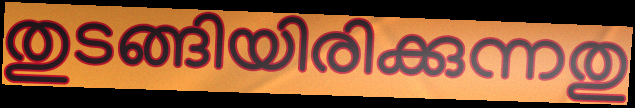
തുടങ്ങിയിരിക്കുന്നതു